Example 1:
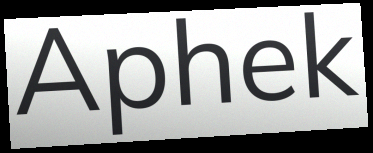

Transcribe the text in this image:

Aphek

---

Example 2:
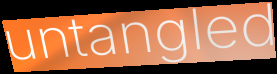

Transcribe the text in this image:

untangled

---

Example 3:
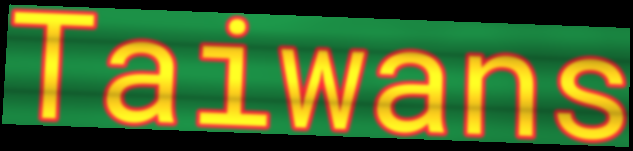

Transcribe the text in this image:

Taiwans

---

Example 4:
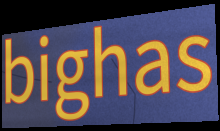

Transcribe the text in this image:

bighas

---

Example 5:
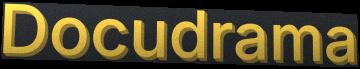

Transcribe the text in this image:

Docudrama